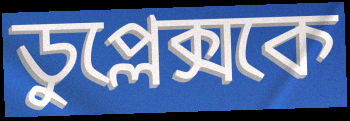
ডুপ্লেক্সকে